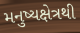
મનુષ્યક્ષેત્રથી